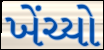
ખેંચ્યો